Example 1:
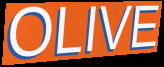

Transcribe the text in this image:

OLIVE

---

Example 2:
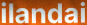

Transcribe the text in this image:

ilandai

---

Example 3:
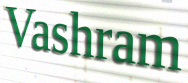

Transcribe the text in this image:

Vashram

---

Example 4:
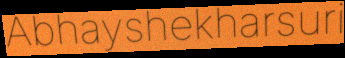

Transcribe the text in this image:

Abhayshekharsuri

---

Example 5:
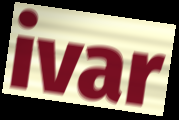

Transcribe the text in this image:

ivar